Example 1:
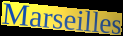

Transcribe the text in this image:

Marseilles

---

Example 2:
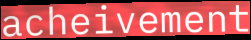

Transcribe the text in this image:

acheivement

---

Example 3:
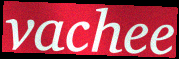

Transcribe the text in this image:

vachee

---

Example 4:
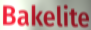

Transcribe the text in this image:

Bakelite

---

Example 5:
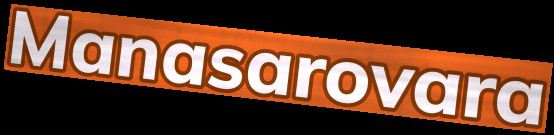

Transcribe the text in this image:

Manasarovara